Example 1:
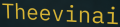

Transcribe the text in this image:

Theevinai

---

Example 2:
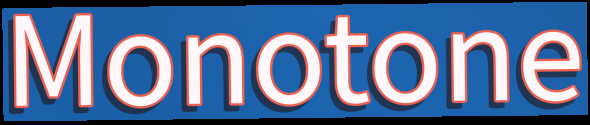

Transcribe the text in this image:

Monotone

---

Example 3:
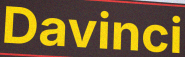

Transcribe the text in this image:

Davinci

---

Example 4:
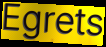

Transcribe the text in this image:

Egrets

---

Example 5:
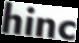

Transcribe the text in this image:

hinc